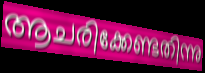
ആചരിക്കേണ്ടതിന്നു